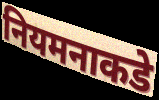
नियमनाकडे